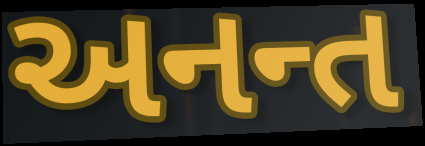
અનન્ત